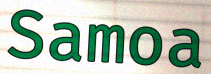
Samoa